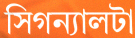
সিগন্যালটা